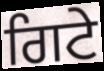
ਗਿਟੇ